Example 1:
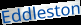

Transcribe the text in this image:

Eddleston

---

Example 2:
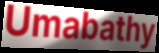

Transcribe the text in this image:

Umabathy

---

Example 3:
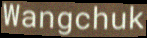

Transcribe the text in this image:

Wangchuk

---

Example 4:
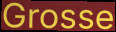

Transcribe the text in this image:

Grosse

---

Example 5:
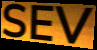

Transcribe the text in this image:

SEV